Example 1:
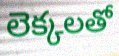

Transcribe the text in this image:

లెక్కలతో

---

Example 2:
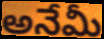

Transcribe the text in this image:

అనేమీ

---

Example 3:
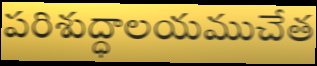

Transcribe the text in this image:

పరిశుద్ధాలయముచేత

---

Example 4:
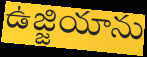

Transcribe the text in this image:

ఉజ్జియాను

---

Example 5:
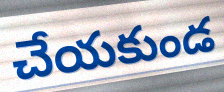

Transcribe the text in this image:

చేయకుండ